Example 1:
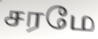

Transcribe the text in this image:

சரமே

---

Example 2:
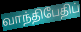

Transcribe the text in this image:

வாந்திபேதிப்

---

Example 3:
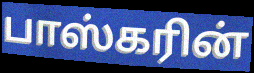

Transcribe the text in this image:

பாஸ்கரின்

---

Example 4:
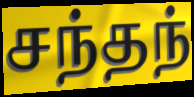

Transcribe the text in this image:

சந்தந்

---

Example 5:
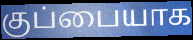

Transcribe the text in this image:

குப்பையாக